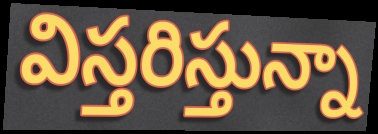
విస్తరిస్తున్నా